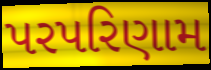
પરપરિણામ